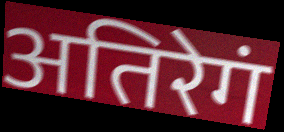
अतिरेगं